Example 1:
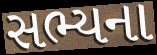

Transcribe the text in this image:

સભ્યના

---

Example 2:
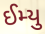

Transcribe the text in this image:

ઈમ્યુ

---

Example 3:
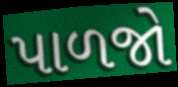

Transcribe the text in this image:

પાળજો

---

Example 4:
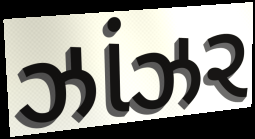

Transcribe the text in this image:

ઝાંઝર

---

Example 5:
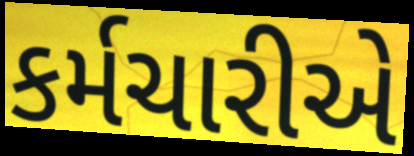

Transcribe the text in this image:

કર્મચારીએ